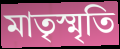
মাতৃস্মৃতি